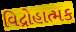
વિદ્રોહાત્મક